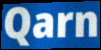
Qarn